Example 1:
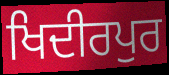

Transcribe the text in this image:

ਖਿਦੀਰਪੁਰ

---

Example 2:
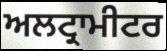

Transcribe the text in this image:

ਅਲਟ੍ਰਾਮੀਟਰ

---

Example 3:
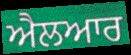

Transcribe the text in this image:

ਐਲਆਰ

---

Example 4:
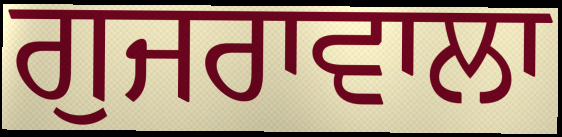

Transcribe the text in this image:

ਗੁਜਰਾਵਾਲਾ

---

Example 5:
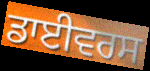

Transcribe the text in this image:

ਡਾਈਵਰਸ